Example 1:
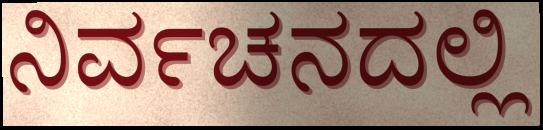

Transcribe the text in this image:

ನಿರ್ವಚನದಲ್ಲಿ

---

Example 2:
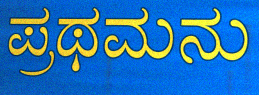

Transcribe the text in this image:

ಪ್ರಥಮನು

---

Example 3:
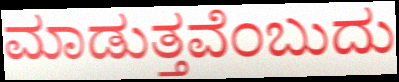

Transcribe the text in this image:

ಮಾಡುತ್ತವೆಂಬುದು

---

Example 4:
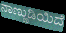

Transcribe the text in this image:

ನಾಣ್ಣುಡಿಯಿದೆ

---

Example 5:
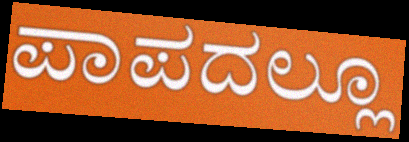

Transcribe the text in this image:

ಪಾಪದಲ್ಲೂ